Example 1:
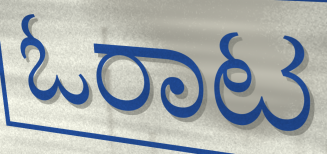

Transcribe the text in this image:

ಓರಾಟ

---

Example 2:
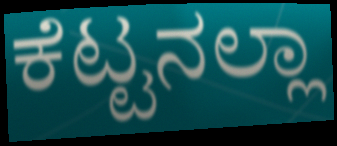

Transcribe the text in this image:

ಕೆಟ್ಟನಲ್ಲಾ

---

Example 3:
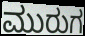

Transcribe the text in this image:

ಮುರುಗ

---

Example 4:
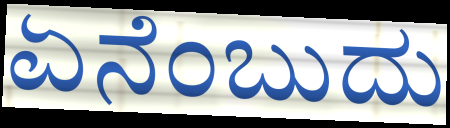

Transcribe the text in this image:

ಏನೆಂಬುದು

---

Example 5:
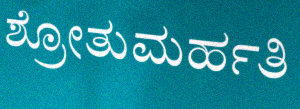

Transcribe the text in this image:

ಶ್ರೋತುಮರ್ಹತಿ